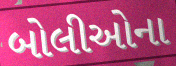
બોલીઓના